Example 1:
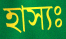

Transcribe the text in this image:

হাস্যঃ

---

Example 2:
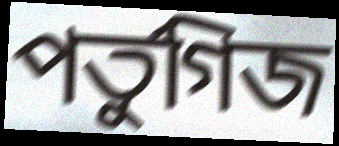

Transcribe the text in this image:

পর্তুগিজ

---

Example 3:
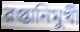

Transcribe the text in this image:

রপ্তানিমুখী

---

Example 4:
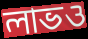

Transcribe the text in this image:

লাভও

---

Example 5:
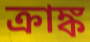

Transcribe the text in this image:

ক্রাঙ্ক